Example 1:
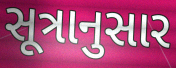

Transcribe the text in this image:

સૂત્રાનુસાર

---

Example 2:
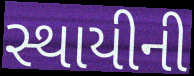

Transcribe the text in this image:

સ્થાયીની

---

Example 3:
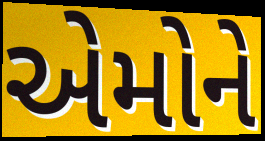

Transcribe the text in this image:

એમોને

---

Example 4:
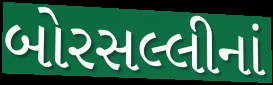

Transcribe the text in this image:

બોરસલ્લીનાં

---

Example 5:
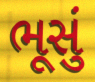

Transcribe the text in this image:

ભૂસું